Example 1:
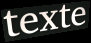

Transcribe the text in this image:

texte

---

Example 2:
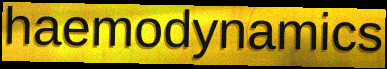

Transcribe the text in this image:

haemodynamics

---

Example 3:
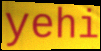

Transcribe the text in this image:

yehi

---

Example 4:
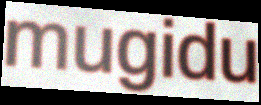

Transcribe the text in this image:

mugidu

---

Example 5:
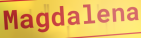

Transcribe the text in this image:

Magdalena